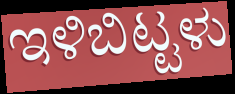
ಇಳಿಬಿಟ್ಟಳು